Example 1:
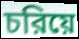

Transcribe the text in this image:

চরিয়ে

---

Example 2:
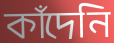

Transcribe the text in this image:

কাঁদেনি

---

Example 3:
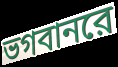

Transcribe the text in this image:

ভগবানরে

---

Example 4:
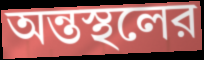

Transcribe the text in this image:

অন্তস্থলের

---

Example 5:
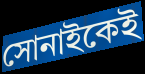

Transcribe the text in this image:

সোনাইকেই